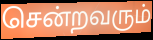
சென்றவரும்